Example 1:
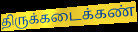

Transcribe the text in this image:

திருக்கடைக்கண்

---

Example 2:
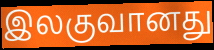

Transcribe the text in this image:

இலகுவானது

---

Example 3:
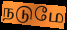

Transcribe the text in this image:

நடுமே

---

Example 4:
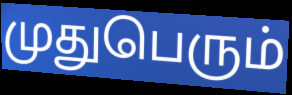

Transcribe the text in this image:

முதுபெரும்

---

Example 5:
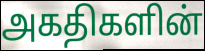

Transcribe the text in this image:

அகதிகளின்